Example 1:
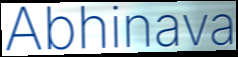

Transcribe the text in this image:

Abhinava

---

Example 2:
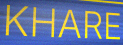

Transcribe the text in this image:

KHARE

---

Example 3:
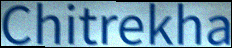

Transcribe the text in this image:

Chitrekha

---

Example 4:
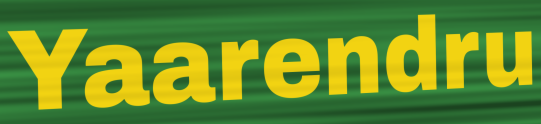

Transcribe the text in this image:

Yaarendru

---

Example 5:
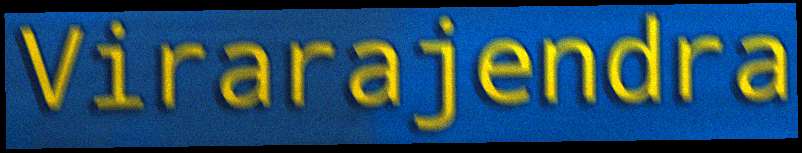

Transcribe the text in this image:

Virarajendra